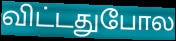
விட்டதுபோல